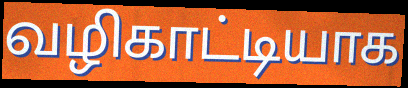
வழிகாட்டியாக